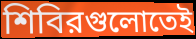
শিবিরগুলোতেই